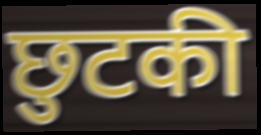
छुटकी